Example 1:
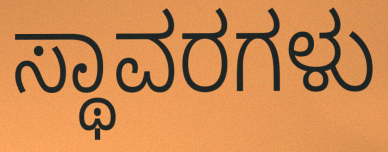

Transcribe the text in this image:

ಸ್ಥಾವರಗಳು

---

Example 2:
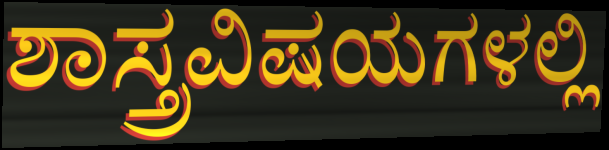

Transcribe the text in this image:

ಶಾಸ್ತ್ರವಿಷಯಗಳಲ್ಲಿ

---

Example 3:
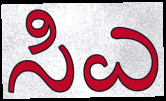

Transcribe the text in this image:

ಸಿಎ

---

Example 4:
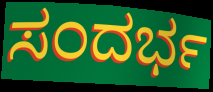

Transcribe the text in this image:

ಸಂದರ್ಭ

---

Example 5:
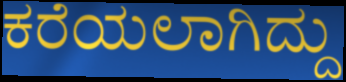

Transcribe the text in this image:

ಕರೆಯಲಾಗಿದ್ದು